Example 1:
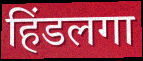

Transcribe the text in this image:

हिंडलगा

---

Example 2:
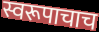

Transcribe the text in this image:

स्वरूपाचाच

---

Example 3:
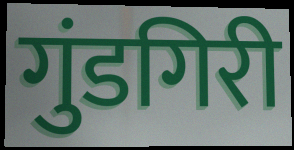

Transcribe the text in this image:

गुंडगिरी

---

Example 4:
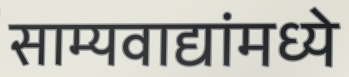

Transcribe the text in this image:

साम्यवाद्यांमध्ये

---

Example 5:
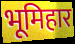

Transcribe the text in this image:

भूमिहार